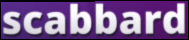
scabbard